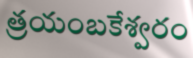
త్రయంబకేశ్వరం